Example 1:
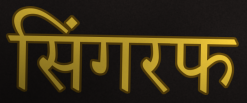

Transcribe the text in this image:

सिंगरफ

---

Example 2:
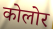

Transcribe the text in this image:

कोलोर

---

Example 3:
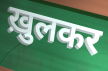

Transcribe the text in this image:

ख़ुलकर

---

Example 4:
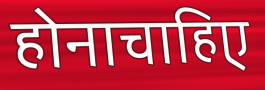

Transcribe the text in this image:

होनाचाहिए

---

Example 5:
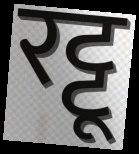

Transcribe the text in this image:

रट्टू